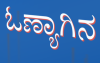
ಓಣ್ಯಾಗಿನ